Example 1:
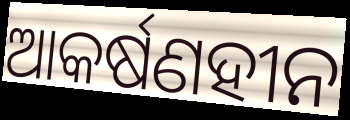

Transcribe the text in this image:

ଆକର୍ଷଣହୀନ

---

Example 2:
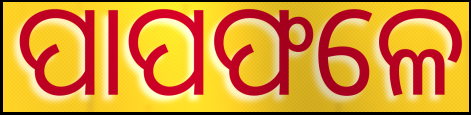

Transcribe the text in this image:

ପାପଫଳେ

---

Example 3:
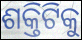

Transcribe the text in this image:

ଶକ୍ତିଟିକୁ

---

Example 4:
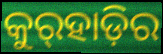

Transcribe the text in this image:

କୁର୍‍ହାଡ଼ିର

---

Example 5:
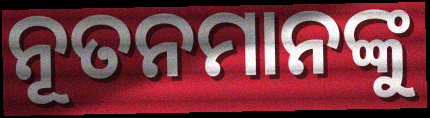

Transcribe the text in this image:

ନୂତନମାନଙ୍କୁ